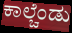
ಕಾಲ್ಚೆಂಡು